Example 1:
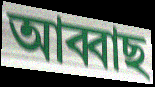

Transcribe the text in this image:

আব্বাছ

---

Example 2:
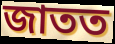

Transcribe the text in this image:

জাতত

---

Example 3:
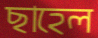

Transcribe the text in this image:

ছাহেল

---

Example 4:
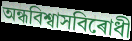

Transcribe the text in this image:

অন্ধবিশ্বাসবিৰোধী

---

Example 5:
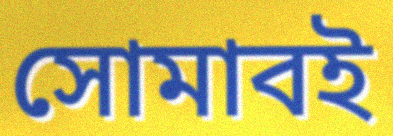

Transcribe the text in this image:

সোমাবই